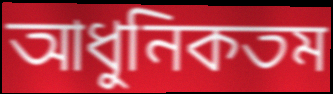
আধুনিকতম